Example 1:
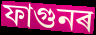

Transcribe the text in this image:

ফাগুনৰ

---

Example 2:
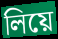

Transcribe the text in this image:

লিয়ে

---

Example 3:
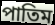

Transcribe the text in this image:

পাতিম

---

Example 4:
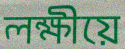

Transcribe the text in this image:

লক্ষীয়ে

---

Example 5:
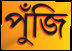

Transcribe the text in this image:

পুঁজি